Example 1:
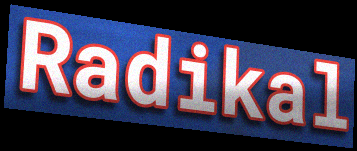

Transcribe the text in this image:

Radikal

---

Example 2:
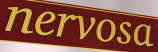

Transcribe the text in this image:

nervosa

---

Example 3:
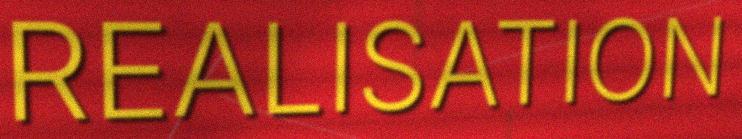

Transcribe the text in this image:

REALISATION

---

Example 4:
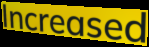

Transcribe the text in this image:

Increased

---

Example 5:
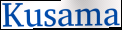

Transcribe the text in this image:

Kusama